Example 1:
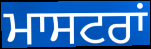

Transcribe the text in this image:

ਮਾਸਟਰਾਂ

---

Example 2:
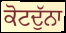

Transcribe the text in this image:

ਕੋਟਦੁੱਨਾ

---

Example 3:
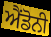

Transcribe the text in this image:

ਐਂਡੋਨੀ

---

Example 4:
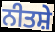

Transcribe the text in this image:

ਨੀਤਸ਼ੇ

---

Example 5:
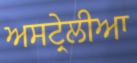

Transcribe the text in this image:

ਅਸਟ੍ਰੇਲੀਆ